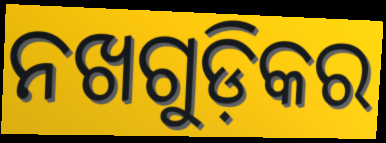
ନଖଗୁଡ଼ିକର